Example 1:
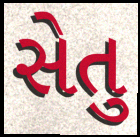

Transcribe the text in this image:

સેતુ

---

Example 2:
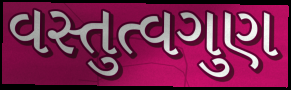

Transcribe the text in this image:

વસ્તુત્વગુણ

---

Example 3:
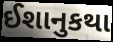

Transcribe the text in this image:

ઈશાનુકથા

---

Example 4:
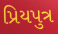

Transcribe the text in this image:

પ્રિયપુત્ર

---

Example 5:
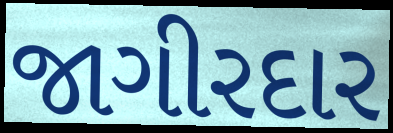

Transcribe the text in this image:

જાગીરદાર